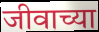
जीवाच्या